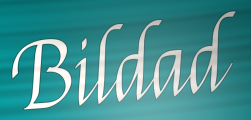
Bildad